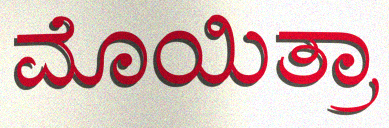
ಮೊಯಿತ್ರಾ